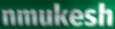
nmukesh